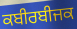
ਕਬੀਰਬੀਜਕ